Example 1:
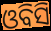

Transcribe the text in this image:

ଓବିସି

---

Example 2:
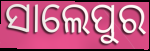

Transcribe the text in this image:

ସାଲେପୁର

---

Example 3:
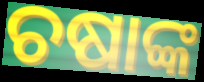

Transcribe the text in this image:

ଚଷାଙ୍କ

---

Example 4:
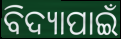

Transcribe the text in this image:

ବିଦ୍ୟାପାଇଁ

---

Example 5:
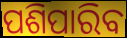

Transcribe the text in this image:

ପଶିପାରିବ